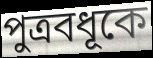
পুত্রবধূকে